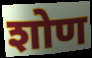
शोण